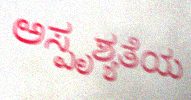
ಅಸ್ಪೃಶ್ಯತೆಯ